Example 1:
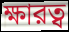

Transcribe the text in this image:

ক্ষারত্ব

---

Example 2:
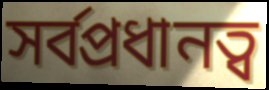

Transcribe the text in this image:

সর্বপ্রধানত্ব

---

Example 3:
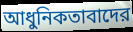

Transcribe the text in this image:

আধুনিকতাবাদের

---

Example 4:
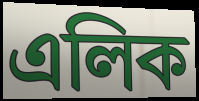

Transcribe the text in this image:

এলিক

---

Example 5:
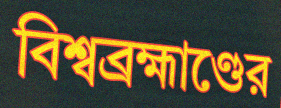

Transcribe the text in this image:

বিশ্বব্রহ্মাণ্ডের